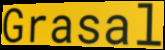
Grasal